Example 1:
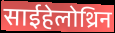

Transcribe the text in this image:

साईहेलोथ्रिन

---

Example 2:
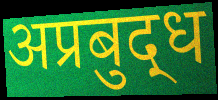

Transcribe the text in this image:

अप्रबुद्ध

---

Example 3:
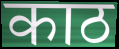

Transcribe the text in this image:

काठ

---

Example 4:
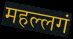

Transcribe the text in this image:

महल्लगं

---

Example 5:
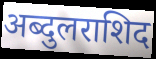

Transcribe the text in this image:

अब्दुलराशिद